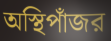
অস্থিপাঁজর